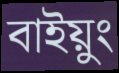
বাইয়ুং